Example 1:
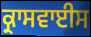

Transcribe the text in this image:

ਕ੍ਰਾਸਵਾਈਸ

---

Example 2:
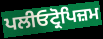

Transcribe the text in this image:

ਪਲੀਓਟ੍ਰੋਪਿਜ਼ਮ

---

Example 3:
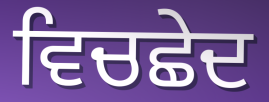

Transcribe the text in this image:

ਵਿਚਛੇਦ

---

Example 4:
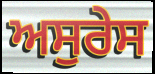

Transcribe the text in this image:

ਅਸੁਰੇਸ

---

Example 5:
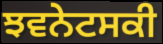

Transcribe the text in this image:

ਝਵਨੇਟਸਕੀ